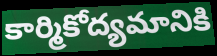
కార్మికోద్యమానికి